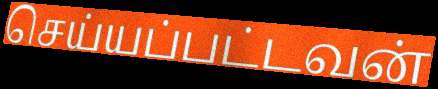
செய்யப்பட்டவன்